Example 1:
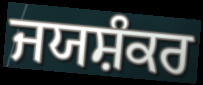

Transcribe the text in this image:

ਜਯਸ਼ੰਕਰ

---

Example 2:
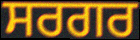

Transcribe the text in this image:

ਸਰਗਰ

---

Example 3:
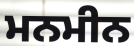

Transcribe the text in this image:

ਮਨਮੀਨ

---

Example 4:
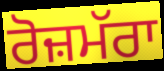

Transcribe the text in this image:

ਰੋਜ਼ਮੱਰਾ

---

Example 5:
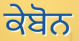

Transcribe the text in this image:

ਕੇਬੋਨ